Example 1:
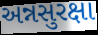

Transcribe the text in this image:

અન્નસુરક્ષા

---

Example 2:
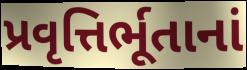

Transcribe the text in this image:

પ્રવૃત્તિર્ભૂતાનાં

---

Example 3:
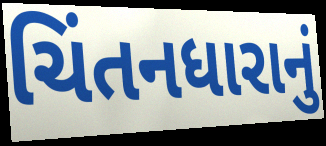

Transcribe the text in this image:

ચિંતનધારાનું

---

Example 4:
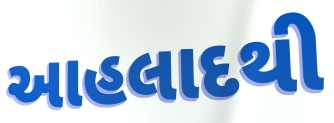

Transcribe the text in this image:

આહલાદથી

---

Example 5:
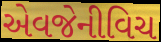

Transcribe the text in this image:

એવજેનીવિચ